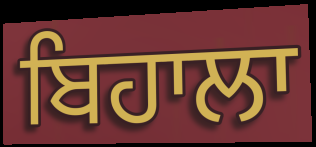
ਬਿਹਾਲਾ